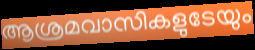
ആശ്രമവാസികളുടേയും